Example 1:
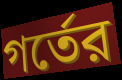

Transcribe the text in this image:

গর্তের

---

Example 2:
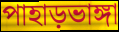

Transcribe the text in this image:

পাহাড়ভাঙ্গা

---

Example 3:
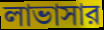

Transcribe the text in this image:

লাভাসার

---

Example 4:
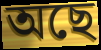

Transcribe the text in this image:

অছে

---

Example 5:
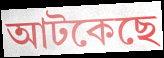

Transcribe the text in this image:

আটকেছে